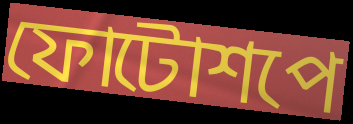
ফোটোশপে